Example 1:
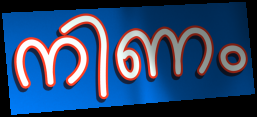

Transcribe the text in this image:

നിണം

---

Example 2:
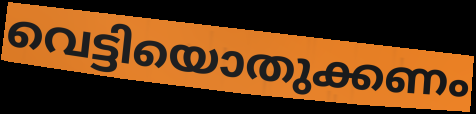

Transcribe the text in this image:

വെട്ടിയൊതുക്കണം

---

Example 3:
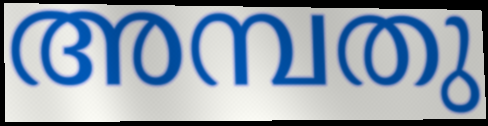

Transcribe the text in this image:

അമ്പതു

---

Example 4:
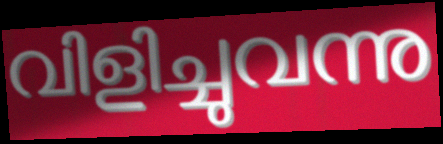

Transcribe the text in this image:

വിളിച്ചുവന്നു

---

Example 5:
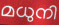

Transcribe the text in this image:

മധുനി